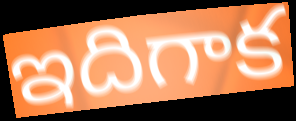
ఇదిగాక